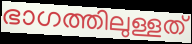
ഭാഗത്തിലുള്ളത്